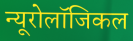
न्यूरोलॉजिकल